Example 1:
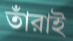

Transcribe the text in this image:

তাঁরাই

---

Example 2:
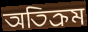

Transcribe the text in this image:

অতিক্রম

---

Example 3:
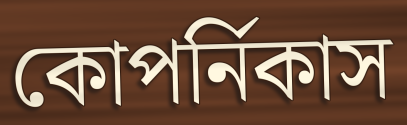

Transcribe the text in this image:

কোপর্নিকাস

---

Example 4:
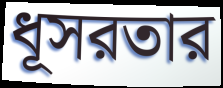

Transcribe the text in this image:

ধূসরতার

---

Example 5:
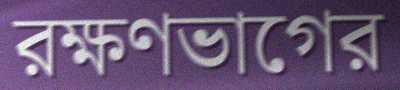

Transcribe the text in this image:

রক্ষণভাগের